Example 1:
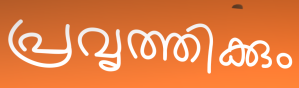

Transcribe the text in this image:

പ്രവൃത്തിക്കും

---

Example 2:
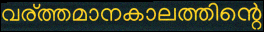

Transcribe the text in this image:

വര്ത്തമാനകാലത്തിന്റെ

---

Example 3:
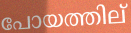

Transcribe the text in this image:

പോയത്തില്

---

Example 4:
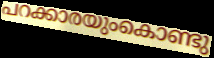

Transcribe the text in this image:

പറക്കാരയുംകൊണ്ടു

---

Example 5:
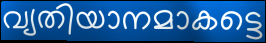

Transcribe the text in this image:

വ്യതിയാനമാകട്ടെ